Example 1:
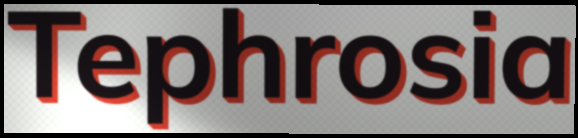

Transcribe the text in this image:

Tephrosia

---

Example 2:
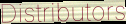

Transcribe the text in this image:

Distributors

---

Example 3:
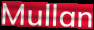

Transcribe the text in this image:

Mullan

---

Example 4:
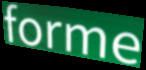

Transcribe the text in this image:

forme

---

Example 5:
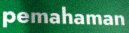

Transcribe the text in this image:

pemahaman